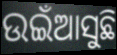
ଉଇଁଆସୁଛି